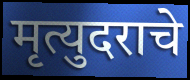
मृत्युदराचे